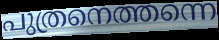
പുത്രനെത്തന്നെ